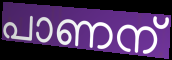
പാണന്